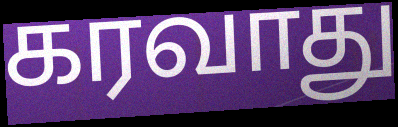
கரவாது